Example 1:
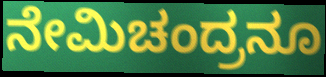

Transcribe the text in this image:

ನೇಮಿಚಂದ್ರನೂ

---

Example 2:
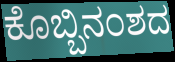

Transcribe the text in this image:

ಕೊಬ್ಬಿನಂಶದ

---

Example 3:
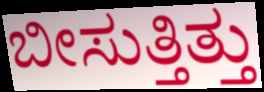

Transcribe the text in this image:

ಬೀಸುತ್ತಿತ್ತು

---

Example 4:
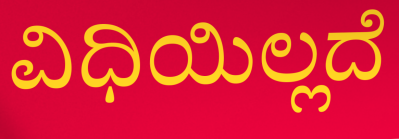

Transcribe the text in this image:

ವಿಧಿಯಿಲ್ಲದೆ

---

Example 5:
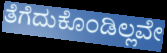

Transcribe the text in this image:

ತೆಗೆದುಕೊಂಡಿಲ್ಲವೇ